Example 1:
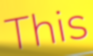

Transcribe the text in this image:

This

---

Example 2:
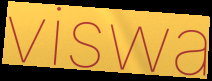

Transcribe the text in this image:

viswa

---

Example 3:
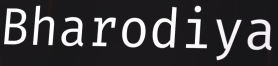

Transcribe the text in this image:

Bharodiya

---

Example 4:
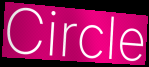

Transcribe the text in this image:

Circle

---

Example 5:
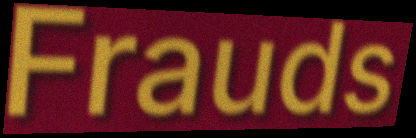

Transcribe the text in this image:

Frauds